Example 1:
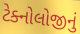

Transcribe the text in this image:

ટેક્નોલોજીનું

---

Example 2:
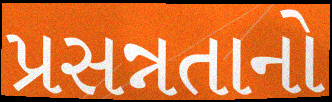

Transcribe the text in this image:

પ્રસન્નતાનો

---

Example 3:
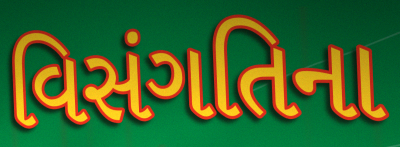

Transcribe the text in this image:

વિસંગતિના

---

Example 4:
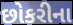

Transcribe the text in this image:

છોકરીના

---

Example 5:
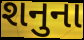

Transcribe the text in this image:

શનુના